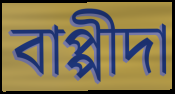
বাপ্পীদা